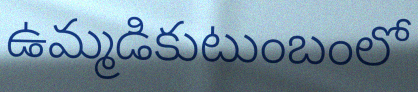
ఉమ్మడికుటుంబంలో